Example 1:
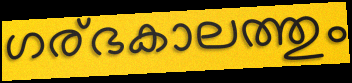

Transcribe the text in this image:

ഗര്ഭകാലത്തും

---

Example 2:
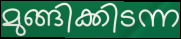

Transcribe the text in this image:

മുങ്ങിക്കിടന്ന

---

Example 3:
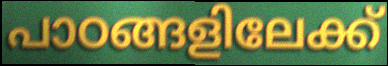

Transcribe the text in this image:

പാഠങ്ങളിലേക്ക്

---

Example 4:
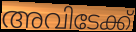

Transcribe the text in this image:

അവിടേക്ക്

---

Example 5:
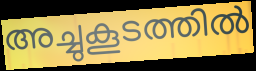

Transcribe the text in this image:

അച്ചുകൂടത്തിൽ